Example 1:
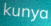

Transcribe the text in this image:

kunya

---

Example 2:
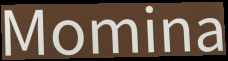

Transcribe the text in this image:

Momina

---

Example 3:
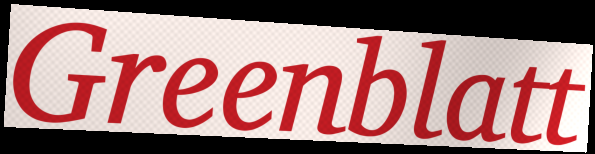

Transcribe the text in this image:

Greenblatt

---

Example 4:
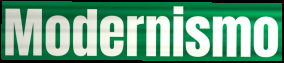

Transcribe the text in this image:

Modernismo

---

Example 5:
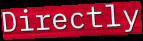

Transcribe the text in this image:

Directly